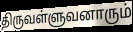
திருவள்ளுவனாரும்